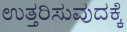
ಉತ್ತರಿಸುವುದಕ್ಕೆ